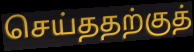
செய்ததற்குத்